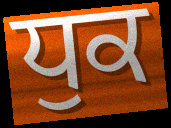
ਧੁਕ